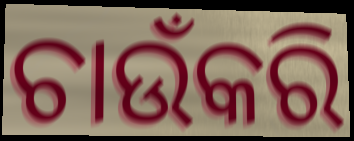
ଚାଉଁକରି